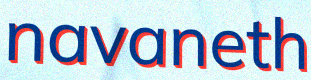
navaneth